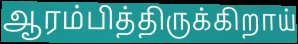
ஆரம்பித்திருக்கிறாய்